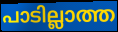
പാടില്ലാത്ത